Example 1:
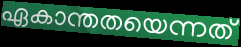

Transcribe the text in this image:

ഏകാന്തതയെന്നത്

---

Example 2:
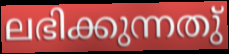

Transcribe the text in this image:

ലഭിക്കുന്നതു്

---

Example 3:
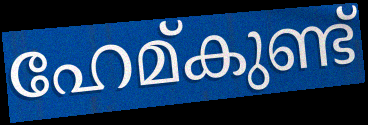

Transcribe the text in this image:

ഹേമ്കുണ്ട്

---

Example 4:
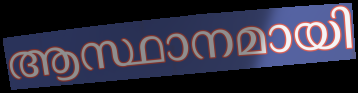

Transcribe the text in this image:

ആസ്ഥാനമായി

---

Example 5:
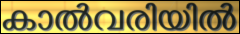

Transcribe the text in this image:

കാൽവരിയിൽ